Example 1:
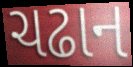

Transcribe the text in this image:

ચઢાન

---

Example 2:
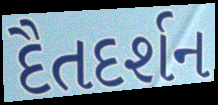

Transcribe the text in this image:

દૈતદર્શન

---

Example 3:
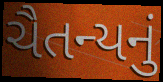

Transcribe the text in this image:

ચૈતન્યનું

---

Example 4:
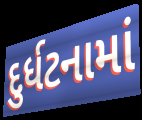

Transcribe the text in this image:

દુર્ધટનામાં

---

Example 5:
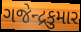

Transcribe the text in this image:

ગજેન્દ્રકુમાર